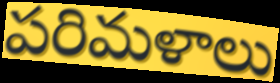
పరిమళాలు